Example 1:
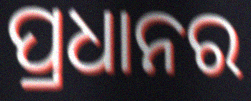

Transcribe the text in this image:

ପ୍ରଧାନର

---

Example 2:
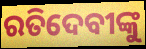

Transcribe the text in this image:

ରତିଦେବୀଙ୍କୁ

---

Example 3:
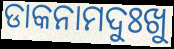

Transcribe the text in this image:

ଡାକନାମଦୁଃଖୁ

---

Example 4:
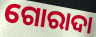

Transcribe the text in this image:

ଗୋରାଦା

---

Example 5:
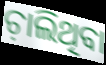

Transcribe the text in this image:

ଚ଼ାଲିଥିବା